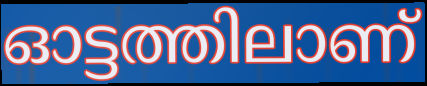
ഓട്ടത്തിലാണ്